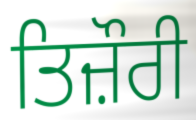
ਤਿਜ਼ੌਰੀ